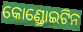
କୋଣ୍ଡ୍ରୋଇଟିନ